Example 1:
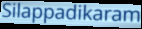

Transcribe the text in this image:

Silappadikaram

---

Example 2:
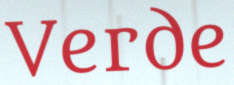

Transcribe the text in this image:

Verde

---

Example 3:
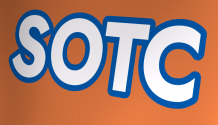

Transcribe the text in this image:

SOTC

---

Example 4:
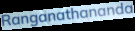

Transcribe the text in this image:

Ranganathananda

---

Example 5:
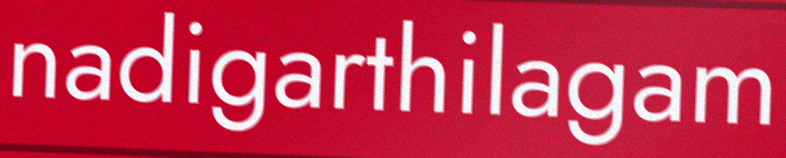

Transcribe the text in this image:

nadigarthilagam